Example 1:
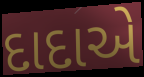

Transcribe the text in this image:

દાદાએ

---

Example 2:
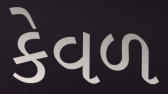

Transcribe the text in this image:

કેવળ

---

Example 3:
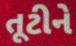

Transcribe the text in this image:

તૂટીને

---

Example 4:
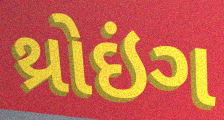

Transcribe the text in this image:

થ્રોઇંગ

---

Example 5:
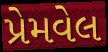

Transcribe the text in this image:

પ્રેમવેલ